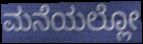
ಮನೆಯಲ್ಲೋ